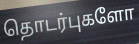
தொடர்புகளோ